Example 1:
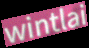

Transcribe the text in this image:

wintlai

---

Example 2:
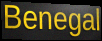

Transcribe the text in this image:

Benegal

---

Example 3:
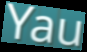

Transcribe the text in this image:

Yau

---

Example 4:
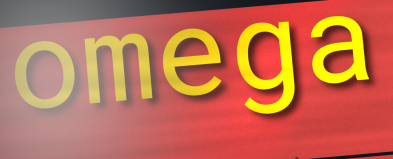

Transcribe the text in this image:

omega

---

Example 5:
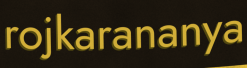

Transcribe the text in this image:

rojkarananya